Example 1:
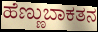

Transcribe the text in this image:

ಹೆಣ್ಣುಬಾಕತನ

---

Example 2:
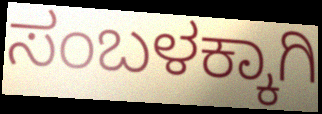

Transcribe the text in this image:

ಸಂಬಳಕ್ಕಾಗಿ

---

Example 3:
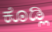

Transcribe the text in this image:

ಕೊಡ್ಲಿ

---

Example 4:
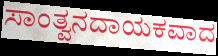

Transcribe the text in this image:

ಸಾಂತ್ವನದಾಯಕವಾದ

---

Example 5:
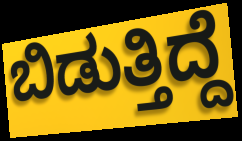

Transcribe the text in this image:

ಬಿಡುತ್ತಿದ್ದೆ